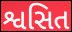
શ્વસિત